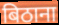
बिठाना